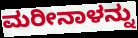
ಮರೀನಾಳನ್ನು